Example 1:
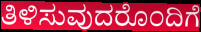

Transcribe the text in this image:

ತಿಳಿಸುವುದರೊಂದಿಗೆ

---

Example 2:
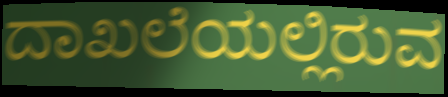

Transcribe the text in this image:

ದಾಖಲೆಯಲ್ಲಿರುವ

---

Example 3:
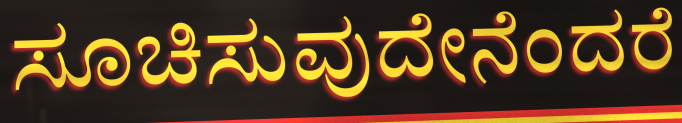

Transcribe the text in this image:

ಸೂಚಿಸುವುದೇನೆಂದರೆ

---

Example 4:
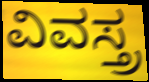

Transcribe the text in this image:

ವಿವಸ್ತ್ರ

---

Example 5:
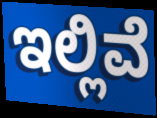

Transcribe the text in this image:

ಇಲ್ಲಿವೆ